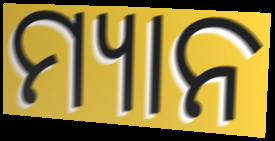
ମ୍ୟାନ